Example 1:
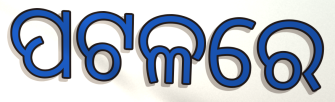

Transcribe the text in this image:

ପଟଳରେ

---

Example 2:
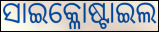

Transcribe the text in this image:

ସାଇକ୍ଳୋଷ୍ଟାଇଲ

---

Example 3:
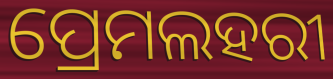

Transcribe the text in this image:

ପ୍ରେମଲହରୀ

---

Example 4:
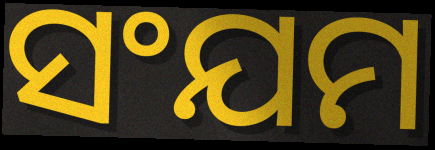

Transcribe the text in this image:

ସଂଯମ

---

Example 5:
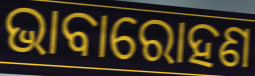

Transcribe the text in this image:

ଭାବାରୋହଣ